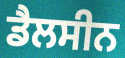
ਡੈਲਸੀਨ